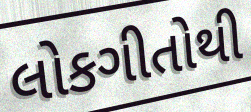
લોકગીતોથી